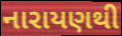
નારાયણથી